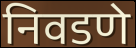
निवडणे